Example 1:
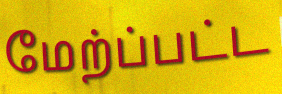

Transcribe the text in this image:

மேற்ப்பட்ட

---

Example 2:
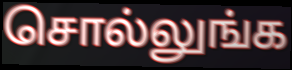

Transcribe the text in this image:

சொல்லுங்க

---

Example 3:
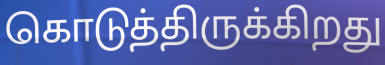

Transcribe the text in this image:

கொடுத்திருக்கிறது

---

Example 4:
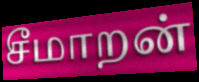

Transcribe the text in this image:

சீமாறன்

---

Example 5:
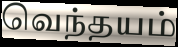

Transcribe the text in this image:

வெந்தயம்